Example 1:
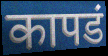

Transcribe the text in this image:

कापडं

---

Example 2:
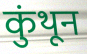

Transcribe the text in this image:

कुंथून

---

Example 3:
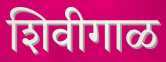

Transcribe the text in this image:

शिवीगाळ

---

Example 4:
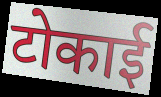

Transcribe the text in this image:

टोकाई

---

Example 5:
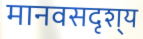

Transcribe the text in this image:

मानवसदृश्य